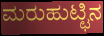
ಮರುಹುಟ್ಟಿನ